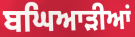
ਬਘਿਆੜੀਆਂ